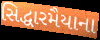
સિદ્ધારમૈયાના